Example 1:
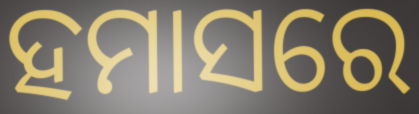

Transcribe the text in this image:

ହମାସରେ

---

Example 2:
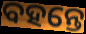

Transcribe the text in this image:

ବହନ୍ତେ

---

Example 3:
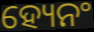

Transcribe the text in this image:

ହ୍ୟେନଂ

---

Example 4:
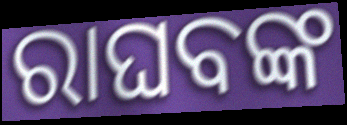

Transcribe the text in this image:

ରାଘବଙ୍କ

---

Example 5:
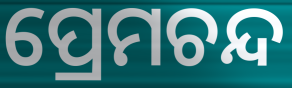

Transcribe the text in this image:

ପ୍ରେମଚନ୍ଦ